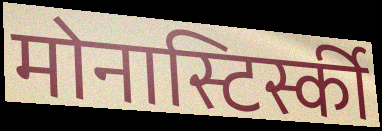
मोनास्टिर्स्की